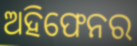
ଅହିଫେନର